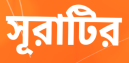
সূরাটির